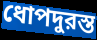
ধোপদুরস্ত